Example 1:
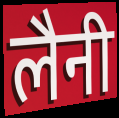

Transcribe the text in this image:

लैनी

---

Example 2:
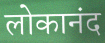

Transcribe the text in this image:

लोकानंद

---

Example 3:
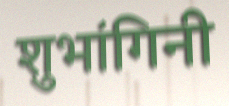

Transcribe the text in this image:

शुभांगिनी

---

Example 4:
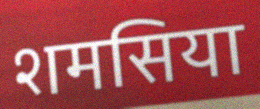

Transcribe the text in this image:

शमसिया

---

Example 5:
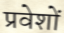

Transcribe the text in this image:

प्रवेशों